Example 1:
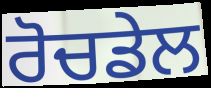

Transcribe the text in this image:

ਰੋਚਡੇਲ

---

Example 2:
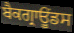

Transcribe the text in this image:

ਬੈਕਗ੍ਰਾਊਂਡਸ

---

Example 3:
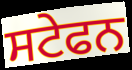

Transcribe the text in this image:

ਸਟੇਫਨ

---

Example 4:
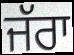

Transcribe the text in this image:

ਜੱਰਾ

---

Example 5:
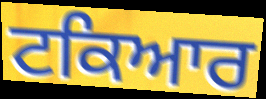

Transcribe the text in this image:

ਟਕਿਆਰ